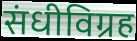
संधीविग्रह